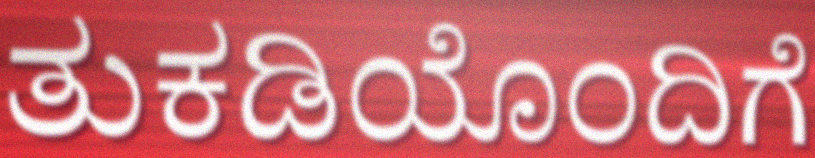
ತುಕಡಿಯೊಂದಿಗೆ